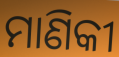
ମାଣିକୀ